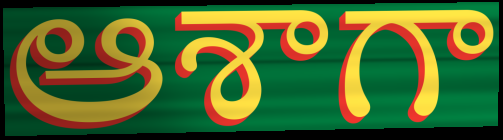
ఆశాగా